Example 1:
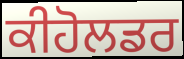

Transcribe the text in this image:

ਕੀਹੋਲਡਰ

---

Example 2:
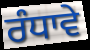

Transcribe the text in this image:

ਰੰਧਾਵੇ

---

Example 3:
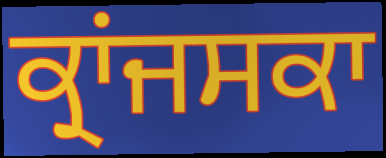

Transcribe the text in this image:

ਕ੍ਰਾਂਜਸਕਾ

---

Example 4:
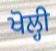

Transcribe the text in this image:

ਖੋਲ੍ਹੀ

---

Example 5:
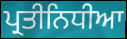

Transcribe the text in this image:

ਪ੍ਰਤੀਨਿਧੀਆ